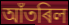
আঁতৰিল